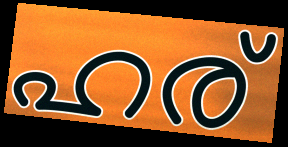
ഹര്